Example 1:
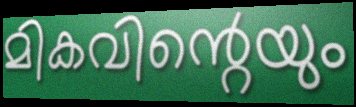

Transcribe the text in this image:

മികവിന്റെയും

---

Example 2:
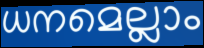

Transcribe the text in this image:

ധനമെല്ലാം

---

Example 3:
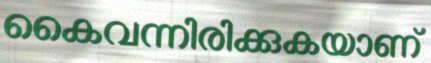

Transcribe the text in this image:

കൈവന്നിരിക്കുകയാണ്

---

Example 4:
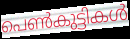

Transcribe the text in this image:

പെൺകുട്ടികൾ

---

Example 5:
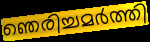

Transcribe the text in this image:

ഞെരിച്ചമർത്തി